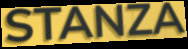
STANZA